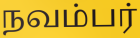
நவம்பர்